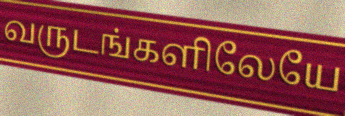
வருடங்களிலேயே